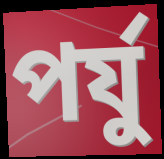
পর্যু